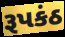
રૂપકંઠ